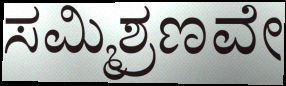
ಸಮ್ಮಿಶ್ರಣವೇ